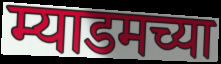
म्याडमच्या